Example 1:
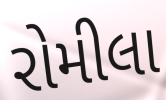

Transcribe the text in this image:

રોમીલા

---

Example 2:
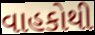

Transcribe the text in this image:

વાહકોથી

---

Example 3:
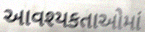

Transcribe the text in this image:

આવશ્યકતાઓમાં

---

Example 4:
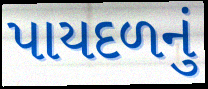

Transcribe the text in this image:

પાયદળનું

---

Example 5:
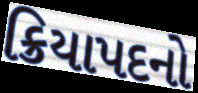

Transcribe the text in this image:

ક્રિયાપદનો